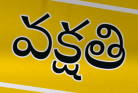
వక్షతి